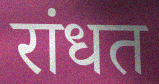
रांधत